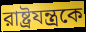
রাষ্ট্রযন্ত্রকে